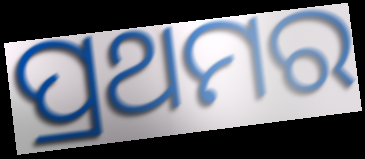
ପ୍ରଥମର